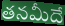
తనమీదే